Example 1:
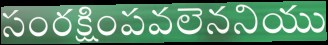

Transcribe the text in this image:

సంరక్షింపవలెననియు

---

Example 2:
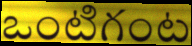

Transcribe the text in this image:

ఒంటిగంట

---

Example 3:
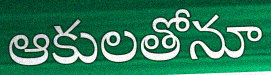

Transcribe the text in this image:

ఆకులతోనూ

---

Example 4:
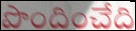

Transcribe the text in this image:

పొందించేది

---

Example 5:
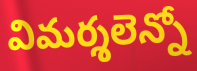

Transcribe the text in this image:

విమర్శలెన్నో